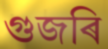
গুজৰি